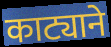
काट्याने